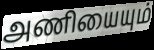
அணியையும்